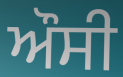
ਔਸੀ